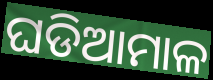
ଘଡିଆମାଳ